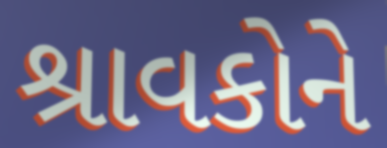
શ્રાવકોને